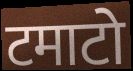
टमाटो